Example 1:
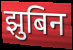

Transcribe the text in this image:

झुबिन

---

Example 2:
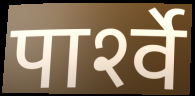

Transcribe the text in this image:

पार्श्वे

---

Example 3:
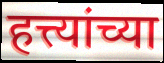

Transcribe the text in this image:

हत्त्यांच्या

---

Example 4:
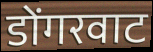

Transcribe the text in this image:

डोंगरवाट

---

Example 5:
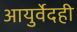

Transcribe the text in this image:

आयुर्वेदही